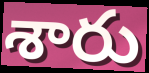
శారు